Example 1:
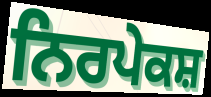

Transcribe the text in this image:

ਨਿਰਪੇਕਸ਼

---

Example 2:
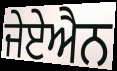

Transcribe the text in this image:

ਜੇਏਐਨ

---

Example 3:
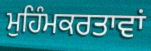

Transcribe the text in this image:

ਮੁਹਿੰਮਕਰਤਾਵਾਂ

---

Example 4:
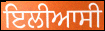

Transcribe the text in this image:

ਇਲੀਆਸੀ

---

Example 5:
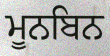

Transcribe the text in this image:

ਮੂਨਬਿਨ